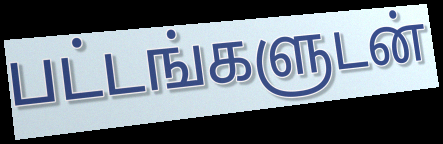
பட்டங்களுடன்